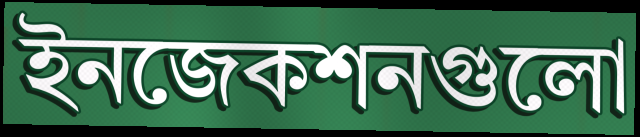
ইনজেকশনগুলো